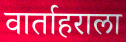
वार्ताहराला